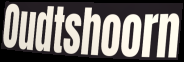
Oudtshoorn